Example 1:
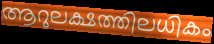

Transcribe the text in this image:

ആറുലക്ഷത്തിലധികം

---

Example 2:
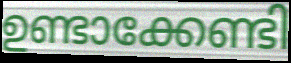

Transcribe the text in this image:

ഉണ്ടാക്കേണ്ടി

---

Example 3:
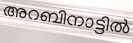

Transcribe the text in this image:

അറബിനാട്ടിൽ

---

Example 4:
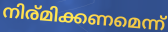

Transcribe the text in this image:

നിര്മിക്കണമെന്ന്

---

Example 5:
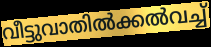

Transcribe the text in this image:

വീട്ടുവാതിൽക്കൽവച്ച്